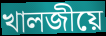
খালজীয়ে